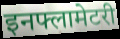
इनफ्लामेटरी